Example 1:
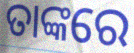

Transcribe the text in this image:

ତାଙ୍କରେ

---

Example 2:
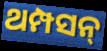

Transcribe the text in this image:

ଥମ୍ପସନ୍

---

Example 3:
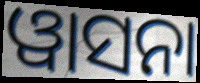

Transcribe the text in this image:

ୱାସନା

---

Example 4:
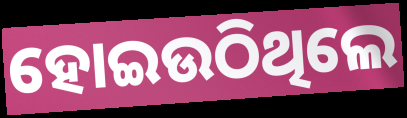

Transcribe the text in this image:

ହୋଇଉଠିଥିଲେ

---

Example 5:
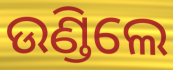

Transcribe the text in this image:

ଉଣ୍ଡିଲେ